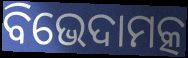
ବିଭେଦାମତ୍କ